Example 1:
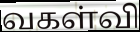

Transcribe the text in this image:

வகள்வி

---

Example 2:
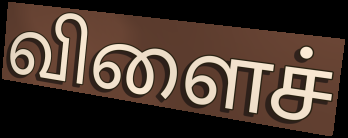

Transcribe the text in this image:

விளைச்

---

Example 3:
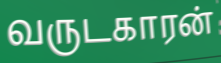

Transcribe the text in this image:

வருடகாரன்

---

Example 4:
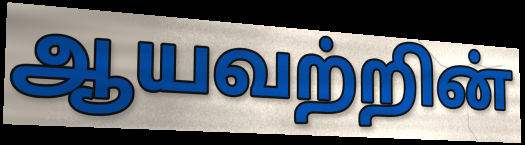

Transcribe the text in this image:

ஆயவற்றின்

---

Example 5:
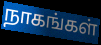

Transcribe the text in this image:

நாகங்கள்